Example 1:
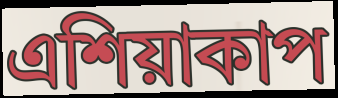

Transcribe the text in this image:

এশিয়াকাপ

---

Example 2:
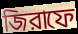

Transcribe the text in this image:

জিরাফে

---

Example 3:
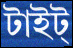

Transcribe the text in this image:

টাইট্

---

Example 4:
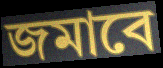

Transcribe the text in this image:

জমাবে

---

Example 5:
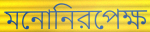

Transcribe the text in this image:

মনোনিরপেক্ষ